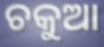
ଚକୁଆ